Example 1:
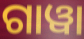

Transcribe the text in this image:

ଗାୱା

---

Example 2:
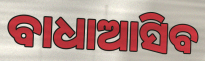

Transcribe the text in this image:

ବାଧାଆସିବ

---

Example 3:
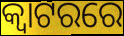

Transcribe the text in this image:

କ୍ୱାଟରରେ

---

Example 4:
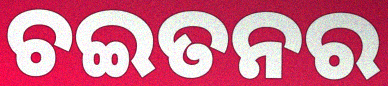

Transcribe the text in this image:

ଚଇତନର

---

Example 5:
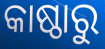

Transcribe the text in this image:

କାଷ୍ଠାରୁ